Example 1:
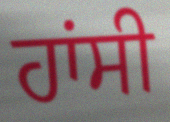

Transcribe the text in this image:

ਹਾਂਸੀ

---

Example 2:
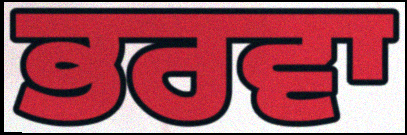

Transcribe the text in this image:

ਭਰਵਾ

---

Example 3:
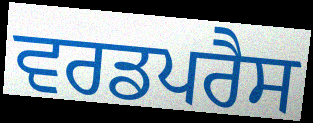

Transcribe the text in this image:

ਵਰਡਪਰੈਸ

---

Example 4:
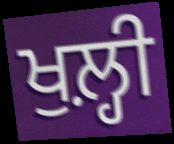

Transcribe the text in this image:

ਖੁਲ਼੍ਹੀ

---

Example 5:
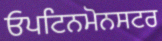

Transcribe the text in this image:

ਓਪਟਿਨਮੋਨਸਟਰ